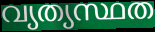
വ്യത്യസ്ഥത